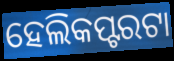
ହେଲିକପ୍ଟରଟା